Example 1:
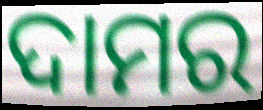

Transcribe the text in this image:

ଦାମର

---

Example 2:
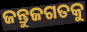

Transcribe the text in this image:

ଜନ୍ତୁଜଗତକୁ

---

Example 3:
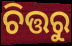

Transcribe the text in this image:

ଚିତ୍ତରୁ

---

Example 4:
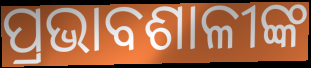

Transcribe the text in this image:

ପ୍ରଭାବଶାଳୀଙ୍କ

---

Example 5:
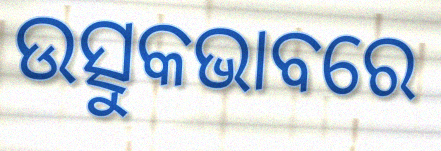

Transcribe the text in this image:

ଉତ୍ସୁକଭାବରେ